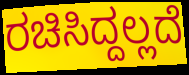
ರಚಿಸಿದ್ದಲ್ಲದೆ